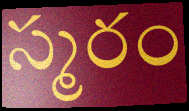
స్మరం